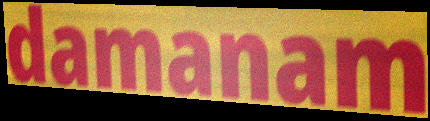
damanam